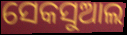
ସେକସୁଆଲ